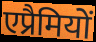
एप्रैमियों